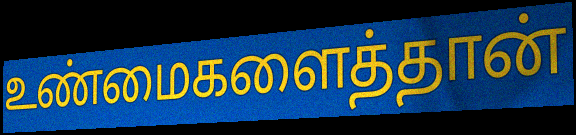
உண்மைகளைத்தான்